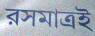
রসমাত্রই